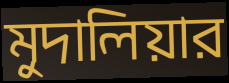
মুদালিয়ার